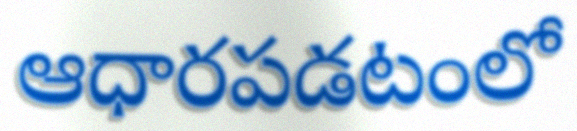
ఆధారపడటంలో